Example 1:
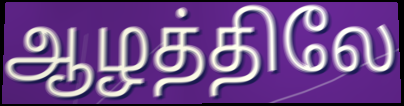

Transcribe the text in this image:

ஆழத்திலே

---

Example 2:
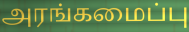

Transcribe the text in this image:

அரங்கமைப்பு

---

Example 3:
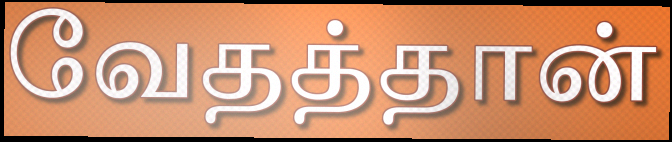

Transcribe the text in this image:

வேதத்தான்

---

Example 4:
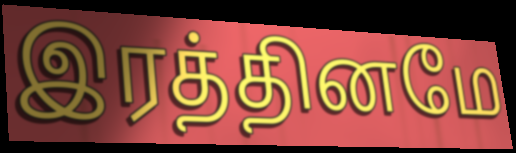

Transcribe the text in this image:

இரத்தினமே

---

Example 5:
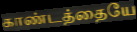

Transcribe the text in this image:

காண்டத்தையே